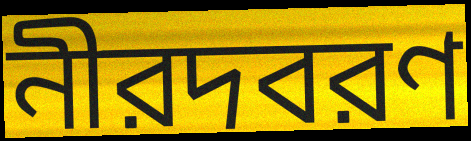
নীরদবরণ